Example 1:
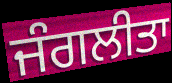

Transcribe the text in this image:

ਜੰਗਲੀਤਾ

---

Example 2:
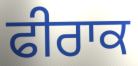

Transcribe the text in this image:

ਫੀਰਾਕ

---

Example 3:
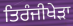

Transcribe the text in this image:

ਤਿਰੰਜੀਖੇੜਾ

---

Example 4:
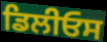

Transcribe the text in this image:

ਡਿਲੀਓਸ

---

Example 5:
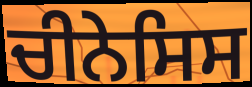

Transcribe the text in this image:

ਚੀਨੇਸਿਸ